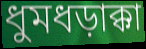
ধুমধড়াক্কা